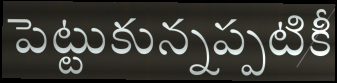
పెట్టుకున్నప్పటికీ